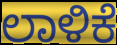
ಲಾಳಿಕೆ